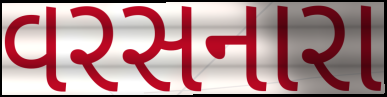
વરસનારા